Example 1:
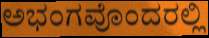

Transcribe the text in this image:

ಅಭಂಗವೊಂದರಲ್ಲಿ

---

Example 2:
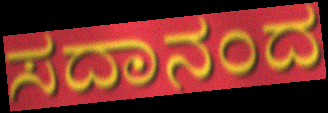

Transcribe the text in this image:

ಸದಾನಂದ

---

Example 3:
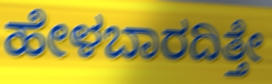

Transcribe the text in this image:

ಹೇಳಬಾರದಿತ್ತೇ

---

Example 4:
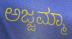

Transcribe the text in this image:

ಅಜ್ಜಮ್ಮಾ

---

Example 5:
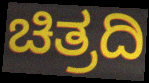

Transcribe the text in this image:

ಚಿತ್ರದಿ